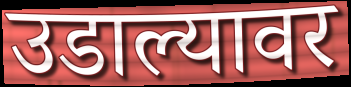
उडाल्यावर